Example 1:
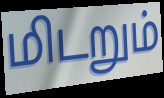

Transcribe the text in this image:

மிடறும்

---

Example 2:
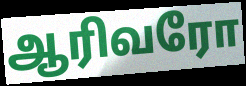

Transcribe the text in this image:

ஆரிவரோ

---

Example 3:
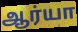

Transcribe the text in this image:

ஆர்யா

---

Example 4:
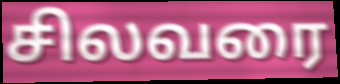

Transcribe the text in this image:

சிலவரை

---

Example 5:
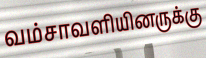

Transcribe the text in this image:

வம்சாவளியினருக்கு